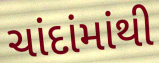
ચાંદાંમાંથી